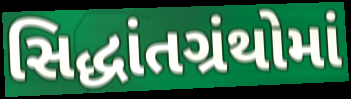
સિદ્ધાંતગ્રંથોમાં